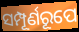
ସମ୍ପୂର୍ଣରୂପେ